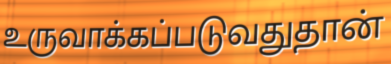
உருவாக்கப்படுவதுதான்